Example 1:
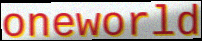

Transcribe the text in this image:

oneworld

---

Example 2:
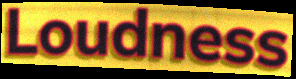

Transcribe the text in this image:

Loudness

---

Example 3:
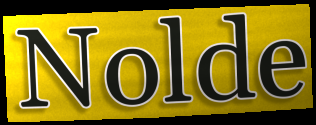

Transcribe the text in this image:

Nolde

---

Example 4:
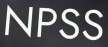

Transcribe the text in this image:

NPSS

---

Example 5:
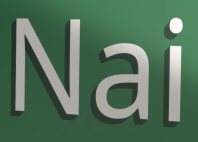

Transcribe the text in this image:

Nai